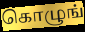
கொழுங்